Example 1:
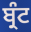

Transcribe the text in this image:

ਬ੍ਰੰਟ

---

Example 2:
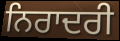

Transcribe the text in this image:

ਨਿਰਾਦਰੀ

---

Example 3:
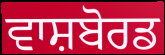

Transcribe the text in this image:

ਵਾਸ਼ਬੋਰਡ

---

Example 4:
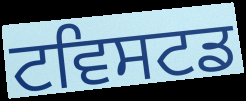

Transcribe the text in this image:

ਟਵਿਸਟਡ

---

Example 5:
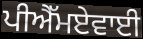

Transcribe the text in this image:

ਪੀਐੱਮਏਵਾਈ